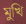
মুখি